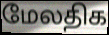
மேலதிக